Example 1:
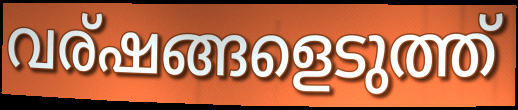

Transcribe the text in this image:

വര്ഷങ്ങളെടുത്ത്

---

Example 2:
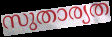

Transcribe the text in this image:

സുതാര്യത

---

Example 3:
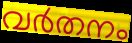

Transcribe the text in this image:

വർതനം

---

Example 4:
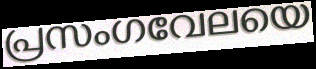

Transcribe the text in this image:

പ്രസംഗവേലയെ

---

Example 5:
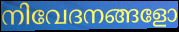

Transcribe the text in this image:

നിവേദനങ്ങളോ